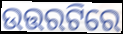
ଉତ୍ତରଟିରେ